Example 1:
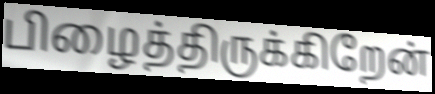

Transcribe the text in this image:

பிழைத்திருக்கிறேன்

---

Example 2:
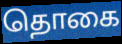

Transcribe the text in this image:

தொகை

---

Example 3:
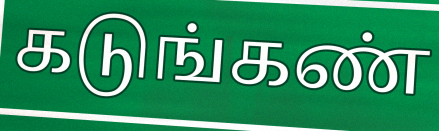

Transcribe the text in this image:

கடுங்கண்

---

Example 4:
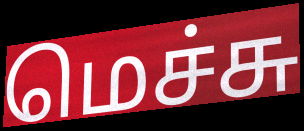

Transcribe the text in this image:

மெச்சு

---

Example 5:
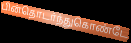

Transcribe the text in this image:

பின்தொடர்ந்துகொண்டே